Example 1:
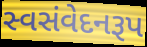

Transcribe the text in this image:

સ્વસંવેદનરૂપ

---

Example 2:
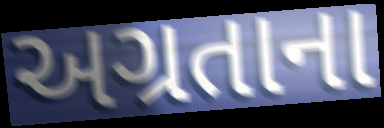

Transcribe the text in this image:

અગ્રતાના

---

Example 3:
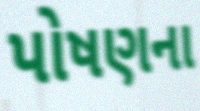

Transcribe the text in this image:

પોષણના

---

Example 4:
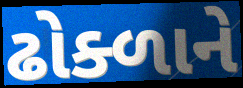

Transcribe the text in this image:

ઢોક્ળાને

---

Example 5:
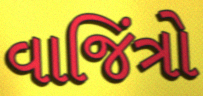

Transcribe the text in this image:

વાજિંત્રો